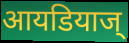
आयडियाज्